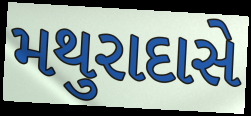
મથુરાદાસે